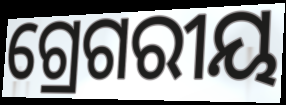
ଗ୍ରେଗରୀୟ